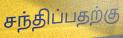
சந்திப்பதற்கு